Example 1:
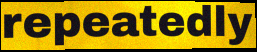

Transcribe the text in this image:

repeatedly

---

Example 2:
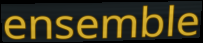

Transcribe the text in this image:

ensemble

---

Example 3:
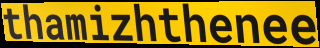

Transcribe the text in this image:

thamizhthenee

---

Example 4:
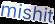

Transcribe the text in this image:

mishit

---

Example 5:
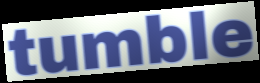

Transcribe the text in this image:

tumble